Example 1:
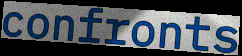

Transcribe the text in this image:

confronts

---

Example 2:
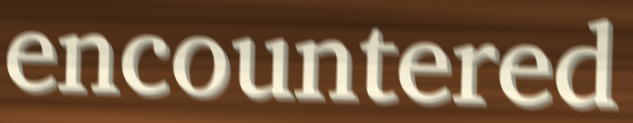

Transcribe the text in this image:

encountered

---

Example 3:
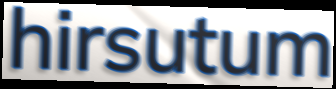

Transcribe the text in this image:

hirsutum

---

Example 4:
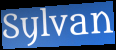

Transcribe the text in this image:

Sylvan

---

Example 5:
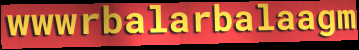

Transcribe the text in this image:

wwwrbalarbalaagm